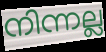
നിന്നല്ല